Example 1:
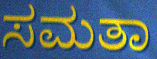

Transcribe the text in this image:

ಸಮತಾ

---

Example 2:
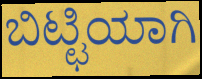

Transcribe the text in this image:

ಬಿಟ್ಟಿಯಾಗಿ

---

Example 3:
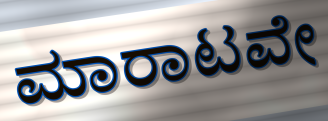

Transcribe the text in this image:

ಮಾರಾಟವೇ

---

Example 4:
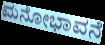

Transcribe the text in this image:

ಮನೋಭಾವನೆ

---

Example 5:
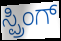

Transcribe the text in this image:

ಸ್ಪ್ರಿಂಗ್